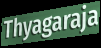
Thyagaraja